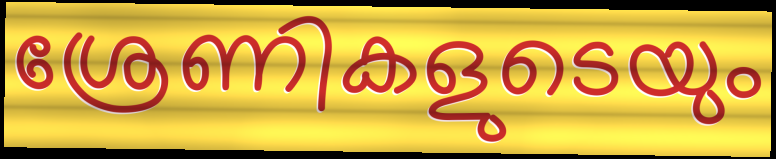
ശ്രേണികളുടെയും